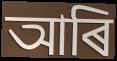
আৰি